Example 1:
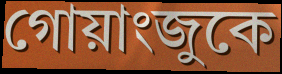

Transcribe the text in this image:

গোয়াংজুকে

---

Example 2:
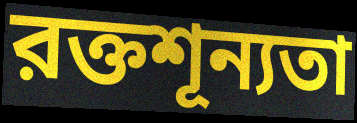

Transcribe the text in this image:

রক্তশূন্যতা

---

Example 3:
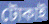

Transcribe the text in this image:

টোকাই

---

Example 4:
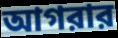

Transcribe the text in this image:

আগরার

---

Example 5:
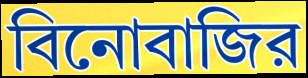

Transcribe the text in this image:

বিনোবাজির